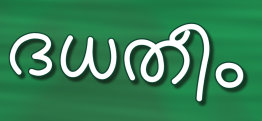
ദധതീം